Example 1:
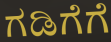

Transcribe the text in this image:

ಗಡಿಗೆಗೆ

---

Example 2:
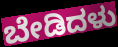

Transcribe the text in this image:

ಬೇಡಿದಳು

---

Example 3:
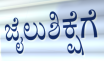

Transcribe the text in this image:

ಜೈಲುಶಿಕ್ಷೆಗೆ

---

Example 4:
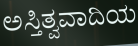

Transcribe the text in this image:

ಅಸ್ತಿತ್ವವಾದಿಯ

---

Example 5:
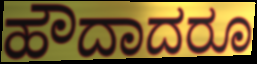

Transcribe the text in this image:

ಹೌದಾದರೂ